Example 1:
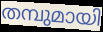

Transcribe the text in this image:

തമ്പുമായി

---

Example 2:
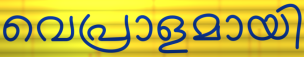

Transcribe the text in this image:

വെപ്രാളമായി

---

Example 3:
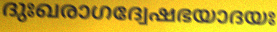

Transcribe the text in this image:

ദുഃഖരാഗദ്വേഷഭയാദയഃ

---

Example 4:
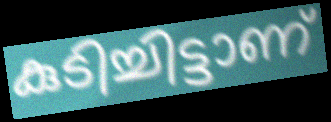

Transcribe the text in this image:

കുടിച്ചിട്ടാണ്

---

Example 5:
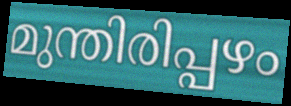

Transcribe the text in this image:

മുന്തിരിപ്പഴം